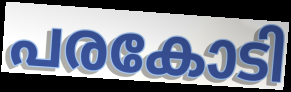
പരകോടി